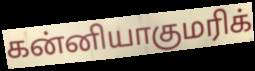
கன்னியாகுமரிக்